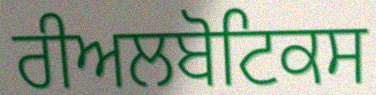
ਰੀਅਲਬੋਟਿਕਸ